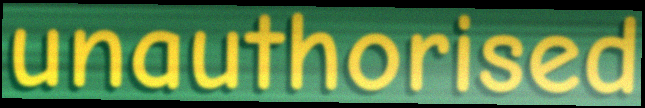
unauthorised